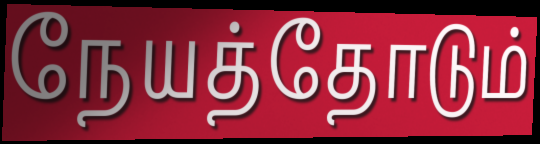
நேயத்தோடும்